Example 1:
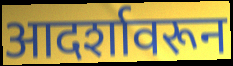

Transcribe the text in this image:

आदर्शावरून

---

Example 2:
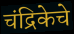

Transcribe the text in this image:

चंद्रिकेचे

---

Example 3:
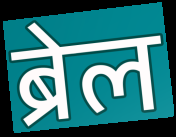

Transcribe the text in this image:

ब्रेल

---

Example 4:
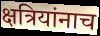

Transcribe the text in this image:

क्षत्रियांनाच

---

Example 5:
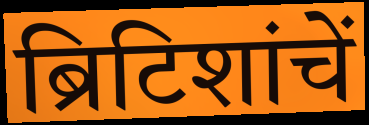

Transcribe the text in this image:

ब्रिटिशांचें